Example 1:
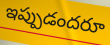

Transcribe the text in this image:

ఇప్పుడందరూ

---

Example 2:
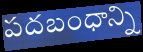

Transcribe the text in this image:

పదబంధాన్ని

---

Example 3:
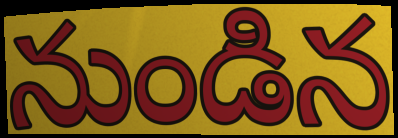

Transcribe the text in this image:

నుండిన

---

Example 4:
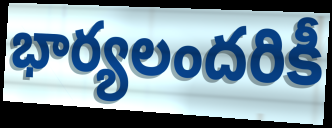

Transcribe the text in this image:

భార్యలందరికీ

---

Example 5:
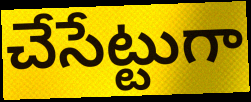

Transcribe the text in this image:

చేసేట్టుగా